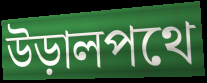
উড়ালপথে